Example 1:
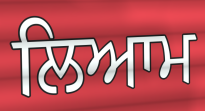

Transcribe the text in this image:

ਲਿਆਮ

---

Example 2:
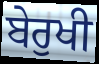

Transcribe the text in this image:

ਬੇਰੁਖੀ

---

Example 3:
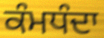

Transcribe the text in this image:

ਕੰਮਧੰਦਾ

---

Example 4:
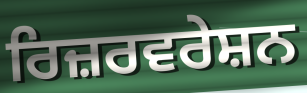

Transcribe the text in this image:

ਰਿਜ਼ਰਵਰੇਸ਼ਨ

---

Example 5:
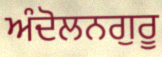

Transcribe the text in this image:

ਅੰਦੋਲਨਗੁਰੂ